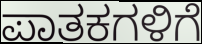
ಪಾತಕಗಳಿಗೆ